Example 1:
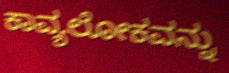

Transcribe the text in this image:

ಕಾವ್ಯಲೋಕವನ್ನು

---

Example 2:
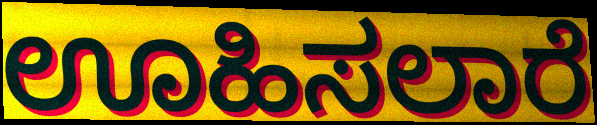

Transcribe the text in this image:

ಊಹಿಸಲಾರೆ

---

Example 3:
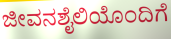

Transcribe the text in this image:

ಜೀವನಶೈಲಿಯೊಂದಿಗೆ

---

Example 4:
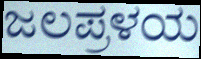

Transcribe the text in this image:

ಜಲಪ್ರಳಯ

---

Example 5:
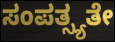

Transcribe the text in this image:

ಸಂಪತ್ಸ್ಯತೇ